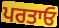
ਪਰਤਾਓ